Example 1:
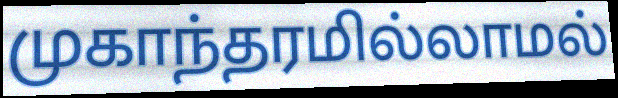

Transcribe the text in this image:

முகாந்தரமில்லாமல்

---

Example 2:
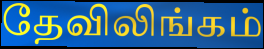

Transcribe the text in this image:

தேவிலிங்கம்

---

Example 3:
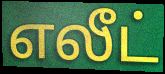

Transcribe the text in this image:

எலீட்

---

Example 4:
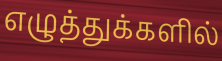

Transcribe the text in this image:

எழுத்துக்களில்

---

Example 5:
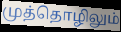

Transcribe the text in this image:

முத்தொழிலும்